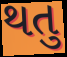
થતુ